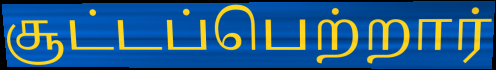
சூட்டப்பெற்றார்